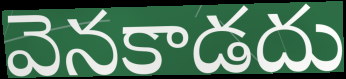
వెనకాడదు